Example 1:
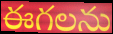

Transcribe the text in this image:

ఈగలను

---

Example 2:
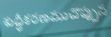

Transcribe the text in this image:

శుద్ధీకరణముచొప్పున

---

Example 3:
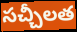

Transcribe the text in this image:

సచ్చీలత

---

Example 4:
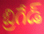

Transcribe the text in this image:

బ్రిగేడ్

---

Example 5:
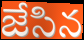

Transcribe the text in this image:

జేసిన